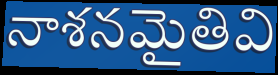
నాశనమైతివి